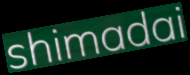
shimadai